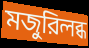
মজুরিলব্ধ